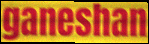
ganeshan